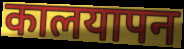
कालयापन